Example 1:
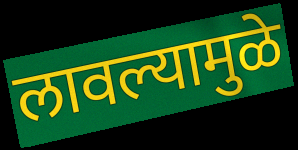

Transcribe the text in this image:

लावल्यामुळे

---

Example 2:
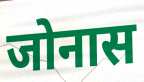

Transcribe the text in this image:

जोनास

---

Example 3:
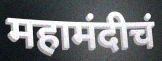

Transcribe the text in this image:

महामंदीचं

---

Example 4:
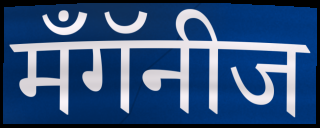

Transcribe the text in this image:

मँगॅनीज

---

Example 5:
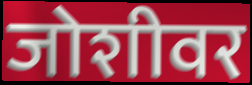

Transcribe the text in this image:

जोशीवर